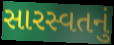
સારસ્વતનું